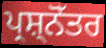
ਪ੍ਰਸ਼੍ਨੋੱਤਰ